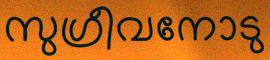
സുഗ്രീവനോടു